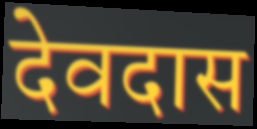
देवदास